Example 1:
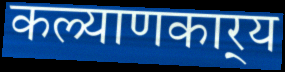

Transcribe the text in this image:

कल्याणकार्य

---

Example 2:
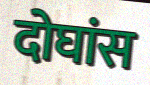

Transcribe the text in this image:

दोघांस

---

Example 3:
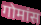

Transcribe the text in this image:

गोमांस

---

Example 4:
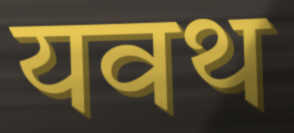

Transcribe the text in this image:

यवथ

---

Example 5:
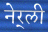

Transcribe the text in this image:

नेर्ली